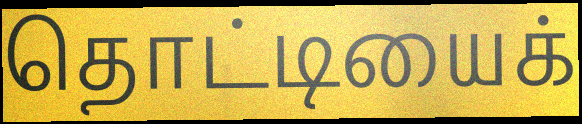
தொட்டியைக்